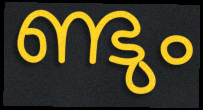
ണ്ടും